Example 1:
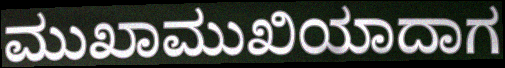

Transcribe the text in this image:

ಮುಖಾಮುಖಿಯಾದಾಗ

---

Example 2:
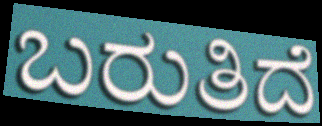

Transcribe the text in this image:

ಬರುತಿದೆ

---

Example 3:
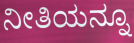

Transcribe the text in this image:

ನೀತಿಯನ್ನೂ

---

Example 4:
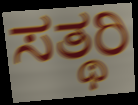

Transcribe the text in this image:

ಸತ್ಥರಿ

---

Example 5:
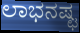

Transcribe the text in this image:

ಲಾಭನಷ್ಟ